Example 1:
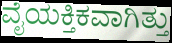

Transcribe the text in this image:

ವೈಯಕ್ತಿಕವಾಗಿತ್ತು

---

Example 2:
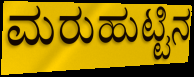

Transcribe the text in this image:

ಮರುಹುಟ್ಟಿನ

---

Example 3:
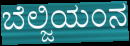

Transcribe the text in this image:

ಬೆಲ್ಜಿಯಂನ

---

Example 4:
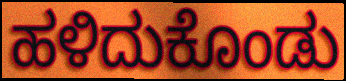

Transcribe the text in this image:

ಹಳಿದುಕೊಂಡು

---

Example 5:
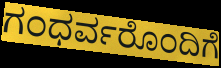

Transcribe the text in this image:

ಗಂಧರ್ವರೊಂದಿಗೆ